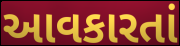
આવકારતાં